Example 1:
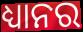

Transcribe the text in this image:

ଧ୍ୟାନର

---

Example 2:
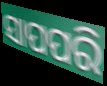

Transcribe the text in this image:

ସାପପରି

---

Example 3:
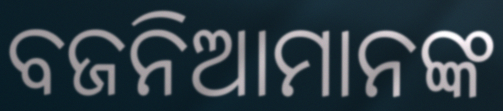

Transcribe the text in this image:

ବଜନିଆମାନଙ୍କ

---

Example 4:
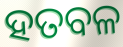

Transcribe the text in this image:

ହତବଳ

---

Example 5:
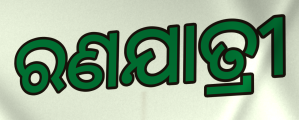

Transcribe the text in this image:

ରଣଯାତ୍ରୀ